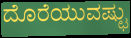
ದೊರೆಯುವಷ್ಟು